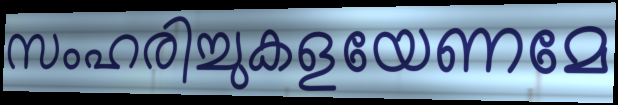
സംഹരിച്ചുകളയേണമേ